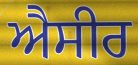
ਐਸੀਰ